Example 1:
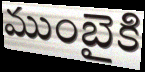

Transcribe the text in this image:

ముంబైకి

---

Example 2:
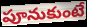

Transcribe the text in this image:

పూనుకుంటే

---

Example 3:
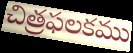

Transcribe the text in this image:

చిత్రఫలకము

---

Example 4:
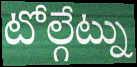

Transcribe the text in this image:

టోల్గేట్ను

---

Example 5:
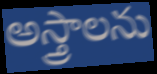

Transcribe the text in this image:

అస్త్రాలను